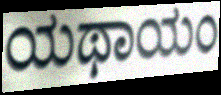
ಯಥಾಯಂ